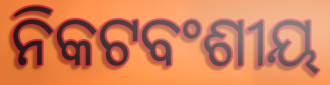
ନିକଟବଂଶୀୟ